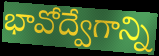
భావోద్వేగాన్ని